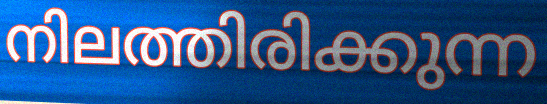
നിലത്തിരിക്കുന്ന